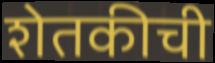
शेतकीची